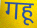
गहू